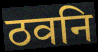
ठवनि